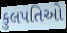
કુલપતિઓ